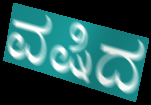
ವಷಿದ